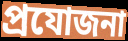
প্ৰযোজনা